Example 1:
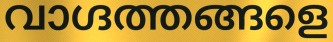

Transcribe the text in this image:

വാഗ്ദത്തങ്ങളെ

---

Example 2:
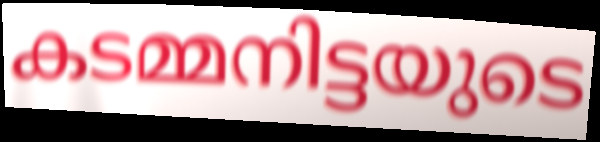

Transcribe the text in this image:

കടമ്മനിട്ടയുടെ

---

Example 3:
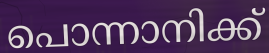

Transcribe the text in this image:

പൊന്നാനിക്ക്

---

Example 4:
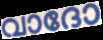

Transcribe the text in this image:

വാദോ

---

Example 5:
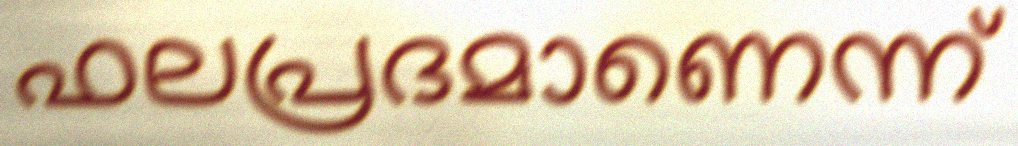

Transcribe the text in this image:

ഫലപ്രദമാണെന്ന്